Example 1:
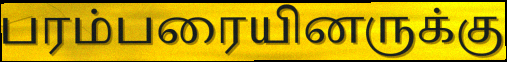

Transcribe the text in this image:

பரம்பரையினருக்கு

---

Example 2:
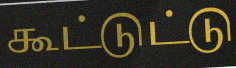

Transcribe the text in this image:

கூட்டுட்டு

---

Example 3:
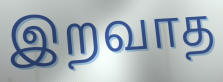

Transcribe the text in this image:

இறவாத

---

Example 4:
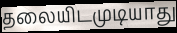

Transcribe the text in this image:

தலையிடமுடியாது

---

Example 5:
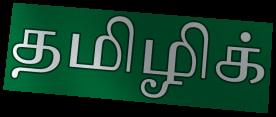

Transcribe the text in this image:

தமிழிக்